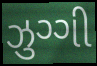
ઝુગ્ગી